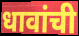
धावांची